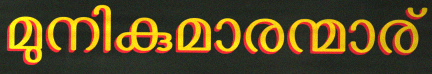
മുനികുമാരന്മാര്